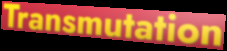
Transmutation